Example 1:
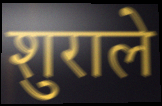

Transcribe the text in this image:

शुराले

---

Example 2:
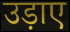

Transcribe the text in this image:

उड़ाए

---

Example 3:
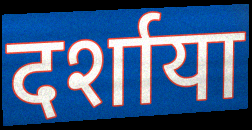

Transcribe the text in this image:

दर्शाया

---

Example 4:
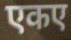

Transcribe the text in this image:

एकए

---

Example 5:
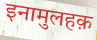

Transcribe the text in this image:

इनामुलहक़